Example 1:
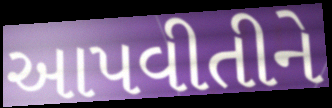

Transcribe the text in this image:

આપવીતીને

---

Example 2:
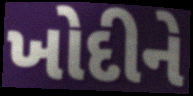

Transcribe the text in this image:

ખોદીને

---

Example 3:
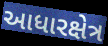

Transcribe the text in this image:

આધારક્ષેત્ર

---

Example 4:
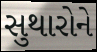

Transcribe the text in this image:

સુથારોને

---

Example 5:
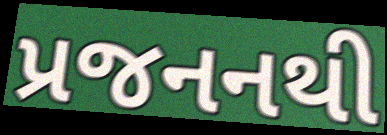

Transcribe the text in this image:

પ્રજનનથી